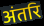
अंतरि